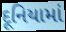
દૂનિયામાં